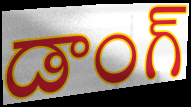
డాంగ్